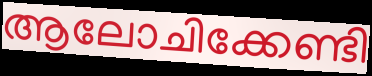
ആലോചിക്കേണ്ടി